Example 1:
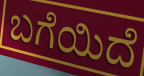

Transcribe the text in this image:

ಬಗೆಯಿದೆ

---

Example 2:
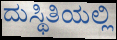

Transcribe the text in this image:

ದುಸ್ಥಿತಿಯಲ್ಲಿ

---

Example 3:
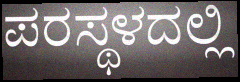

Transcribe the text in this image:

ಪರಸ್ಥಳದಲ್ಲಿ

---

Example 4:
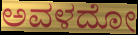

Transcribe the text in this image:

ಅವಳದೋ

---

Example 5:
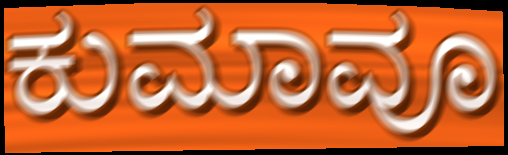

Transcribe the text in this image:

ಕುಮಾವೂ